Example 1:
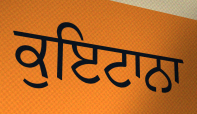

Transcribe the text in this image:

ਕੁਇਟਾਨਾ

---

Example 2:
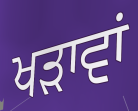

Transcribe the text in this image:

ਖੜਾਵਾਂ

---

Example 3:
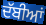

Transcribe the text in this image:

ਦੱਬੀਆਂ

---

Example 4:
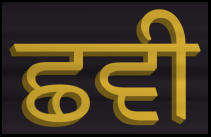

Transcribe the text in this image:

ਛਵੀ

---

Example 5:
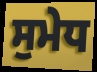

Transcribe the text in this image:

ਸੁਮੇਧ